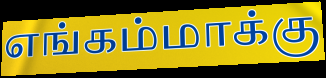
எங்கம்மாக்கு